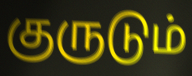
குருடும்